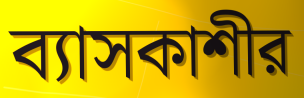
ব্যাসকাশীর